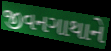
જીવનગાથાને